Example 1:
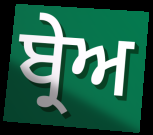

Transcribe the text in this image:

ਬ੍ਰੇਅ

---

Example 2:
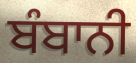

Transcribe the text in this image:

ਬੰਬਾਨੀ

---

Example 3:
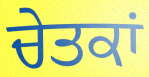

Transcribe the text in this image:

ਚੇਤਕਾਂ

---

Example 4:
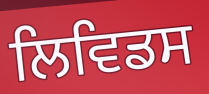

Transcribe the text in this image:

ਲਿਵਿਡਸ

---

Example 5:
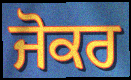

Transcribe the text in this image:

ਜੋਕਰ